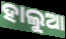
ହାଲୁଆ